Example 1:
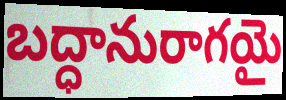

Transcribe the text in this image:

బద్ధానురాగయై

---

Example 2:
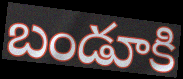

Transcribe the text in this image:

బండూకి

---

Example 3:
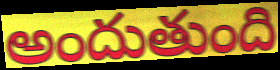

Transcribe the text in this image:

అందుతుంది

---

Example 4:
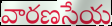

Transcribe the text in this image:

వారణసేయ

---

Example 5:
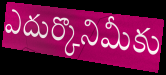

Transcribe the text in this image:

ఎదుర్కొనిమీకు